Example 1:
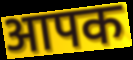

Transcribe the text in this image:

आपक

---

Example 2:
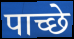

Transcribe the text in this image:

पाच्छे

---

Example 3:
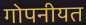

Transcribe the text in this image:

गोपनीयत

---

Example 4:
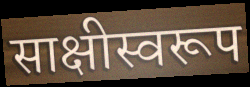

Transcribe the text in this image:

साक्षीस्वरूप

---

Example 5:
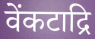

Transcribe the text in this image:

वेंकटाद्रि